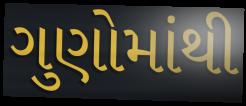
ગુણોમાંથી